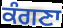
ਕੰਗਣਾ